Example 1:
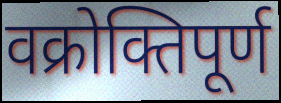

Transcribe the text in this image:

वक्रोक्तिपूर्ण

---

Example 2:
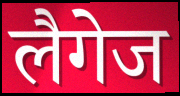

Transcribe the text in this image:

लैगेज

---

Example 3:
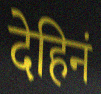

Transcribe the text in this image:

देहिनं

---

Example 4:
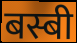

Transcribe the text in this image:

बस्बी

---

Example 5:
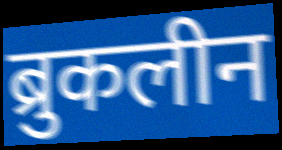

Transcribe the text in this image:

ब्रुकलीन